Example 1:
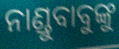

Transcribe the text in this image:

ନାଣ୍ଡୁବାବୁଙ୍କୁ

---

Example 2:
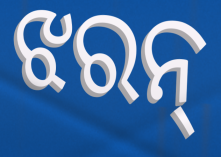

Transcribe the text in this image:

ଝରନ୍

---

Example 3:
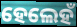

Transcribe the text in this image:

ହେଲେହଁ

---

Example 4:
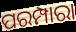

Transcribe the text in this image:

ପରମ୍ପାରା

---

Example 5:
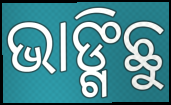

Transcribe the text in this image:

ଭାଙ୍ଗିଛୁ